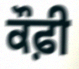
ਕੌਫ਼ੀ